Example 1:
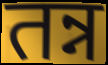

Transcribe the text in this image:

तन्न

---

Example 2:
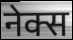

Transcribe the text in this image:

नेक्स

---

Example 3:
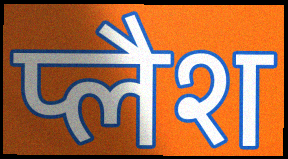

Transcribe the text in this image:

प्लैश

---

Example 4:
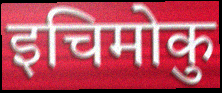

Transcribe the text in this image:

इचिमोकु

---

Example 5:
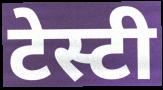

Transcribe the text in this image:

टेस्टी